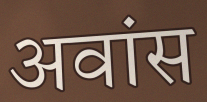
अवांस